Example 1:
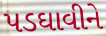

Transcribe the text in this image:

પડઘાવીને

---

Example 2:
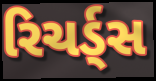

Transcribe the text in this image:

રિચર્ડ્સ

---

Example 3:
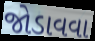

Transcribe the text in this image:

જોડાવવા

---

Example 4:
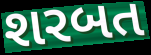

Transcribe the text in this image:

શરબત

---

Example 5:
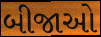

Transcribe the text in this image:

બીજાઓ